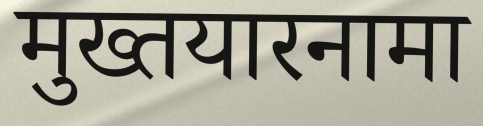
मुख्तयारनामा